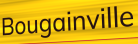
Bougainville